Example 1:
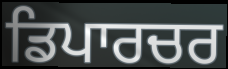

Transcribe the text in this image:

ਡਿਪਾਰਚਰ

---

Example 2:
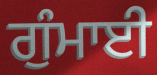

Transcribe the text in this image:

ਗੁੰਮਾਈ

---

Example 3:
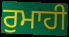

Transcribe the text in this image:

ਰੁਮਾਹੀ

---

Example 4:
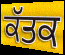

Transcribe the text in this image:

ਕੱਤਕ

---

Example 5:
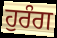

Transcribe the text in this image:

ਹੁਰੰਗ